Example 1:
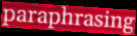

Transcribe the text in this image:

paraphrasing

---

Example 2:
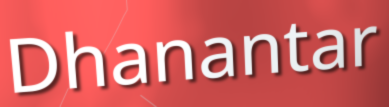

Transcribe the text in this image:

Dhanantar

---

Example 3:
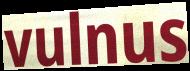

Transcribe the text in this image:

vulnus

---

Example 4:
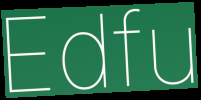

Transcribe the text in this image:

Edfu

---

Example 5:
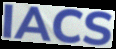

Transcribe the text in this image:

IACS